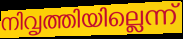
നിവൃത്തിയില്ലെന്ന്